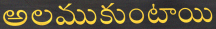
అలముకుంటాయి